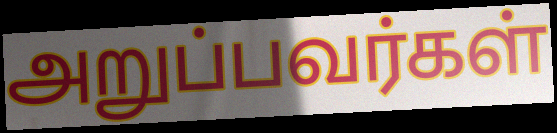
அறுப்பவர்கள்